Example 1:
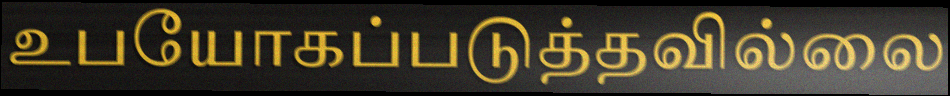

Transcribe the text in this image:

உபயோகப்படுத்தவில்லை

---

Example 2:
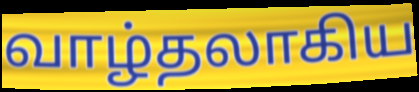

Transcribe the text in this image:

வாழ்தலாகிய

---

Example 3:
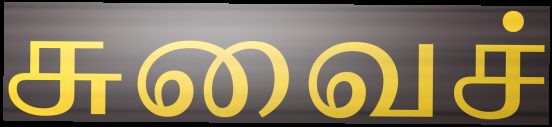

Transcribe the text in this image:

சுவைச்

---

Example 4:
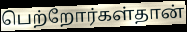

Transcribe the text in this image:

பெற்றோர்கள்தான்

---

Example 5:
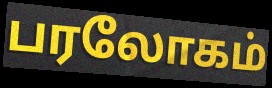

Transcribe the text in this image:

பரலோகம்